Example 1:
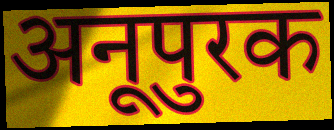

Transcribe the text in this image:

अनूपुरक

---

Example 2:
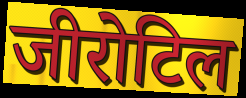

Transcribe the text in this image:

जीरोटिल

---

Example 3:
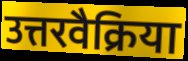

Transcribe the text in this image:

उत्तरवैक्रिया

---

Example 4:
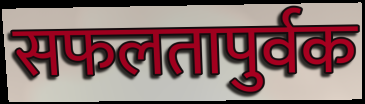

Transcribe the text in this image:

सफलतापुर्वक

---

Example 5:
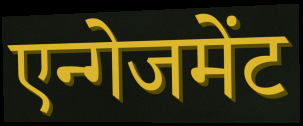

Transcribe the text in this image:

एन्गेजमेंट